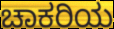
ಚಾಕರಿಯ